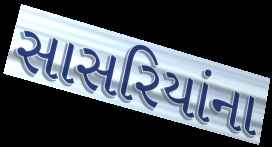
સાસરિયાંના